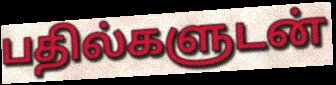
பதில்களுடன்